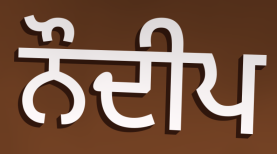
ਨੌਦੀਪ